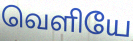
வெளியே